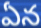
ఏన